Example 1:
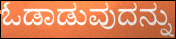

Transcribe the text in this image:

ಓಡಾಡುವುದನ್ನು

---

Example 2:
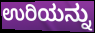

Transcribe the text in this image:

ಉರಿಯನ್ನು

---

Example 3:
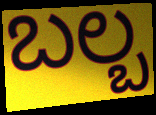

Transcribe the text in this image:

ಬಲ್ಬ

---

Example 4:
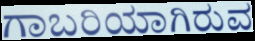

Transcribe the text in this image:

ಗಾಬರಿಯಾಗಿರುವ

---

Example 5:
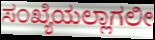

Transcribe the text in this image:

ಸಂಖ್ಯೆಯಲ್ಲಾಗಲೀ